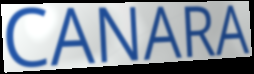
CANARA